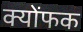
क्योंफक